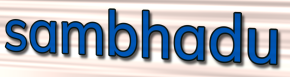
sambhadu